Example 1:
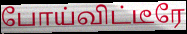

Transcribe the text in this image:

போய்விட்டீரே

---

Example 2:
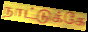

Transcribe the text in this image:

நாட்டுக்கே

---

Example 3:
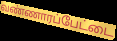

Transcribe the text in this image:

வண்ணாரப்பேட்டை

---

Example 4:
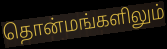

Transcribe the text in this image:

தொன்மங்களிலும்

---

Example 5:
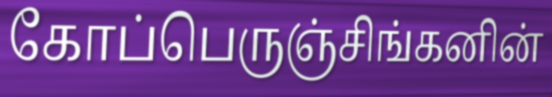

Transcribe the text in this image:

கோப்பெருஞ்சிங்கனின்